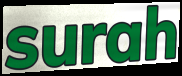
surah